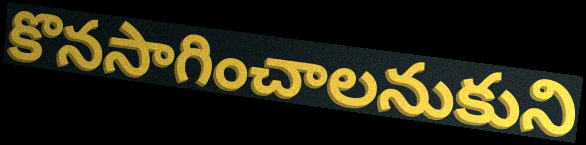
కొనసాగించాలనుకుని